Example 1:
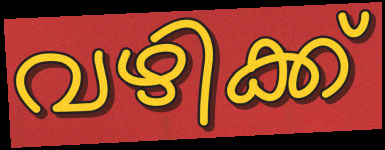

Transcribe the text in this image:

വഴിക്ക്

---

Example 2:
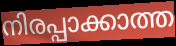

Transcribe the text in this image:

നിരപ്പാക്കാത്ത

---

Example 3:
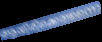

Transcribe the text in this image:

ആയിരിക്കെത്തന്നെ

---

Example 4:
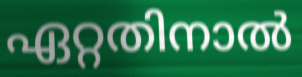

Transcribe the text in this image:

ഏറ്റതിനാൽ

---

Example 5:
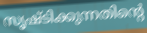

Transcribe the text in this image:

സൃഷ്ടിക്കുന്നതിന്റെ